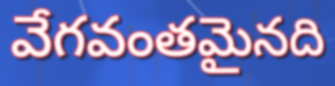
వేగవంతమైనది